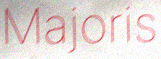
Majoris